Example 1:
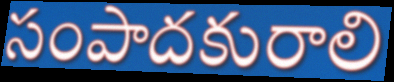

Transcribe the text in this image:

సంపాదకురాలి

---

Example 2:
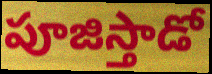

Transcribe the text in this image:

పూజిస్తాడో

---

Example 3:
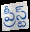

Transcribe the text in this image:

ప్రీస్ట్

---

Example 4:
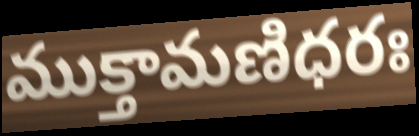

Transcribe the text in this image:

ముక్తామణిధరః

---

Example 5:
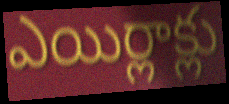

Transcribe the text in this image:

ఎయిర్లాక్లు